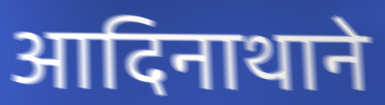
आदिनाथाने